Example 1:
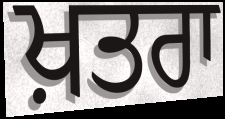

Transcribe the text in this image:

ਖ਼ਤਰਾ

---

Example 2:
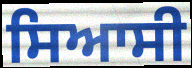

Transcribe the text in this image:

ਸਿਆਸੀ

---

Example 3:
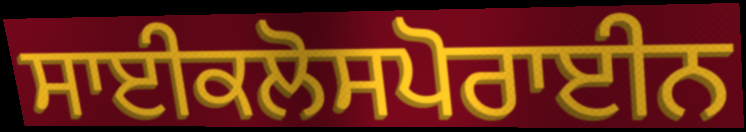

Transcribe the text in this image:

ਸਾਈਕਲੋਸਪੋਰਾਈਨ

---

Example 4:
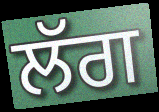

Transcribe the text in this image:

ਲੱਗ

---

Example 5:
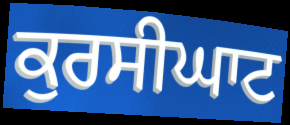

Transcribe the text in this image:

ਕੁਰਸੀਘਾਟ